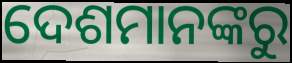
ଦେଶମାନଙ୍କରୁ